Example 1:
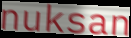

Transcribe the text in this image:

nuksan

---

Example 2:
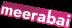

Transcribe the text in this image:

meerabai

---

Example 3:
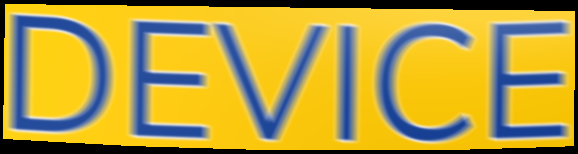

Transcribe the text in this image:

DEVICE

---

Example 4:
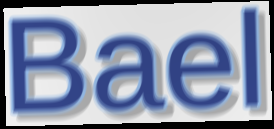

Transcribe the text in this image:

Bael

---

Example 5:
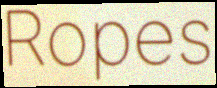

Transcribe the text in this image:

Ropes